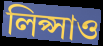
লিপ্সাও